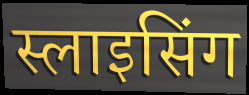
स्लाइसिंग